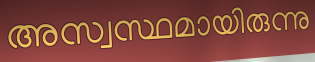
അസ്വസ്ഥമായിരുന്നു